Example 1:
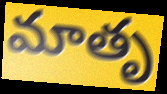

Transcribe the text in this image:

మాతృ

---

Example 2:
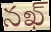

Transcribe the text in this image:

నఖ్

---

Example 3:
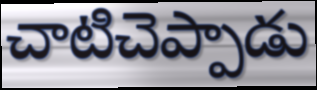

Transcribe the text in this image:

చాటిచెప్పాడు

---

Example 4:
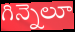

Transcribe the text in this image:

గిన్నెలూ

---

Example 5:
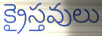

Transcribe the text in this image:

క్రైస్తవులు